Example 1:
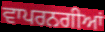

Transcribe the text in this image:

ਵਾਪਰਨਗੀਆਂ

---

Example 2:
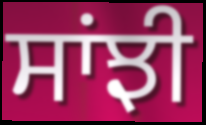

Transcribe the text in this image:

ਸਾਂਝੀ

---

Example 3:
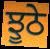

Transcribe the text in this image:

ਝੂਠੇ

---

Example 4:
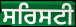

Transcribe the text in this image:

ਸਰਿਸਟੀ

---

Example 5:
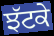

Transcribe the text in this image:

ਝੱਟਕੇ